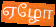
ஏழோ